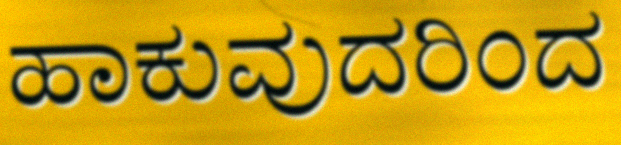
ಹಾಕುವುದರಿಂದ